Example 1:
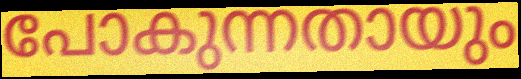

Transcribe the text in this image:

പോകുന്നതായും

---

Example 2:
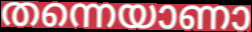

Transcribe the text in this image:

തന്നെയാണാ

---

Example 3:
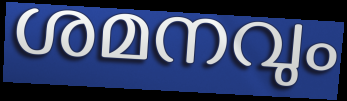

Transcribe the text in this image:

ശമനവും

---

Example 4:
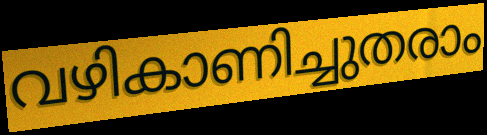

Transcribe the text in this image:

വഴികാണിച്ചുതരാം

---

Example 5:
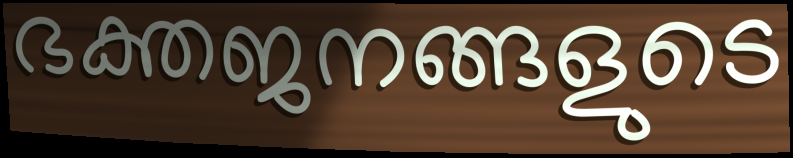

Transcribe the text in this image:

ഭക്തജനങ്ങളുടെ